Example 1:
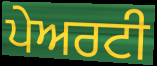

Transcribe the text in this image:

ਪੇਅਰਟੀ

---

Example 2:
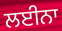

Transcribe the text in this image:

ਲਈਨਾ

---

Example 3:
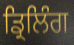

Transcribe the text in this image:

ਡ੍ਰਿਲਿੰਗ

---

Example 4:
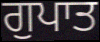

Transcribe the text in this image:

ਗੁਪਾਤ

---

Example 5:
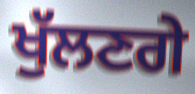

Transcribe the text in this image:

ਖੁੱਲਣਗੇ